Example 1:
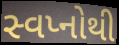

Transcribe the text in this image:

સ્વપ્નોથી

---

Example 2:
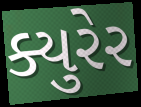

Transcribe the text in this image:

ક્યુરેર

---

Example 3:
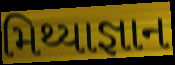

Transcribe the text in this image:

મિથ્યાજ્ઞાન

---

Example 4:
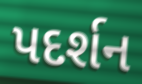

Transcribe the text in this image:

પદર્શન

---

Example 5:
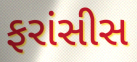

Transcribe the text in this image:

ફરાંસીસ